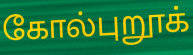
கோல்புறூக்